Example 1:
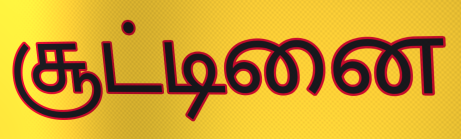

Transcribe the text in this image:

சூட்டினை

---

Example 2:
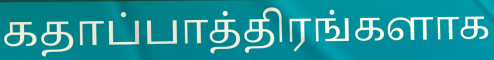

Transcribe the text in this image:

கதாப்பாத்திரங்களாக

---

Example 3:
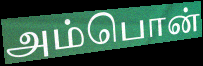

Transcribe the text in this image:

அம்பொன்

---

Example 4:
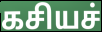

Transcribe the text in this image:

கசியச்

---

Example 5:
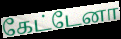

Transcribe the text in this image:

கேட்டேனா